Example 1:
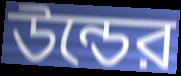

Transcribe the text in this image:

উন্ডের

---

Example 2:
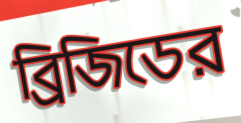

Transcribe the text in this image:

ব্রিজিডের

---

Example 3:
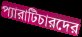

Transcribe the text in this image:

প্যারাটিচারদের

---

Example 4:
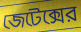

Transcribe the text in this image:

জেটেক্সের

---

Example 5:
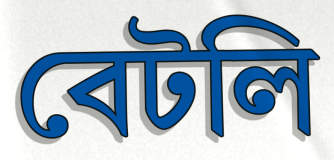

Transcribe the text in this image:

বেটলি